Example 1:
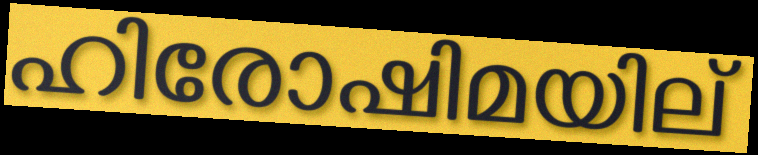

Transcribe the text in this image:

ഹിരോഷിമയില്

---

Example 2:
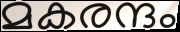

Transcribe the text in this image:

മകരന്ദം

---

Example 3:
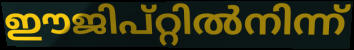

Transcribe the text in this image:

ഈജിപ്റ്റിൽനിന്ന്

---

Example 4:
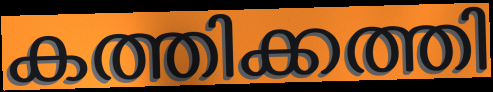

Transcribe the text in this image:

കത്തിക്കത്തി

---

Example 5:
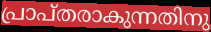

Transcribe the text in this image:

പ്രാപ്തരാകുന്നതിനു